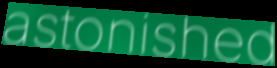
astonished